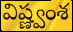
విష్ణ్వంశ